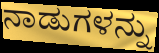
ನಾಡುಗಳನ್ನು